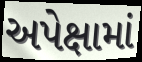
અપેક્ષામાં